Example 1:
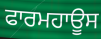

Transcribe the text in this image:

ਫਾਰਮਹਾਊਸ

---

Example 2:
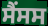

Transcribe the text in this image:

ਸੈਂਸਸ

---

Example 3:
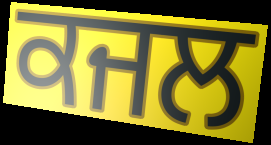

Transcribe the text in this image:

ਕਜਲ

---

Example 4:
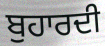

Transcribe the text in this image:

ਬੁਹਾਰਦੀ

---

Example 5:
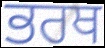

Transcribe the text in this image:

ਭਰਥ